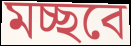
মচ্ছবে